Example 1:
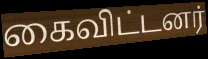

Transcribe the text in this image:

கைவிட்டனர்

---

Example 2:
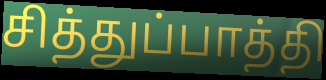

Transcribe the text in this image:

சித்துப்பாத்தி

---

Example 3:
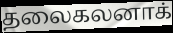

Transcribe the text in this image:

தலைகலனாக்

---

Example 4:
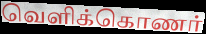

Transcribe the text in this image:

வெளிக்கொணர்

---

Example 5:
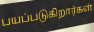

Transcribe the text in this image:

பயப்படுகிறார்கள்